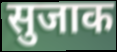
सुजाक